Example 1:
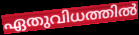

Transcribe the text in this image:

ഏതുവിധത്തിൽ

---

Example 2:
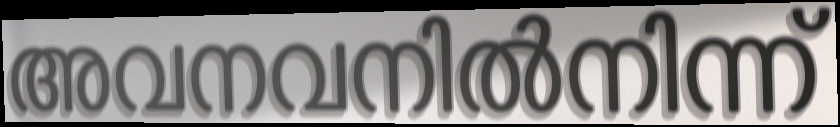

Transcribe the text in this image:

അവനവനിൽനിന്ന്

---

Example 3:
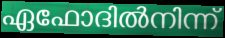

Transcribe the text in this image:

ഏഫോദിൽനിന്ന്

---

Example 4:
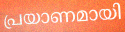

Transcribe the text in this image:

പ്രയാണമായി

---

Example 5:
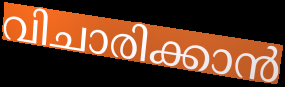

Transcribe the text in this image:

വിചാരിക്കാൻ